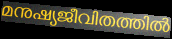
മനുഷ്യജീവിതത്തിൽ